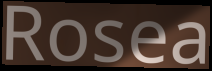
Rosea